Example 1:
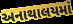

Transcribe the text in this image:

અનાથાલયમાં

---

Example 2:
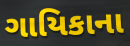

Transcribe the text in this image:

ગાયિકાના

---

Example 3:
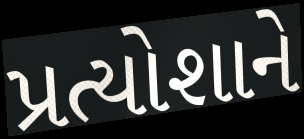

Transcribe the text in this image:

પ્રત્યોશાને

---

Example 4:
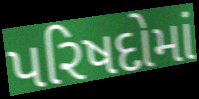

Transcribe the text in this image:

પરિષદોમાં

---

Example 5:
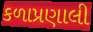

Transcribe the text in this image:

કળાપ્રણાલી